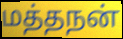
மத்தநன்